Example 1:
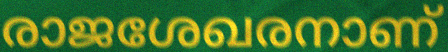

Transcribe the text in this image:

രാജശേഖരനാണ്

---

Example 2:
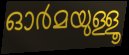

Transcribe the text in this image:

ഓർമയുള്ളൂ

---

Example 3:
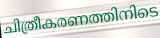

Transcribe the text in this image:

ചിത്രീകരണത്തിനിടെ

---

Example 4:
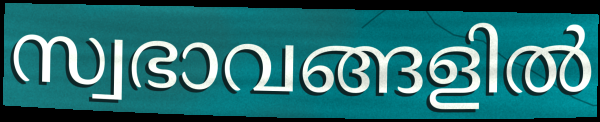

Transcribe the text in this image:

സ്വഭാവങ്ങളിൽ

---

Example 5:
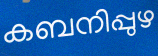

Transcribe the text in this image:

കബനിപ്പുഴ